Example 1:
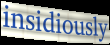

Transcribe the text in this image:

insidiously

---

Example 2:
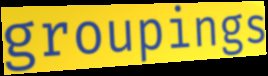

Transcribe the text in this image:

groupings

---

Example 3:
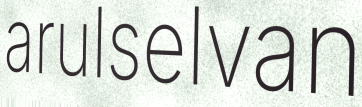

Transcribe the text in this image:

arulselvan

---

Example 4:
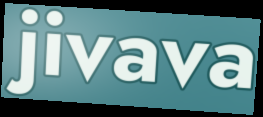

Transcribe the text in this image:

jivava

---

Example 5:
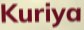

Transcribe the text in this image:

Kuriya